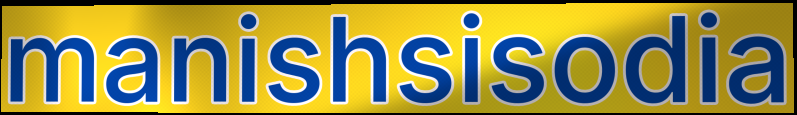
manishsisodia